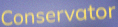
Conservator